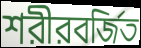
শরীরবর্জিত